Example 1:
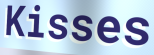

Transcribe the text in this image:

Kisses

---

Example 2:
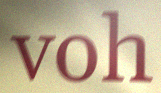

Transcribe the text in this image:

voh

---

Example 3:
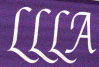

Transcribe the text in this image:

LLLA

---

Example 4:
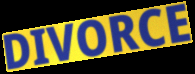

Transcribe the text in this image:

DIVORCE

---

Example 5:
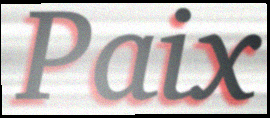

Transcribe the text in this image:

Paix